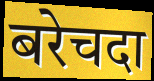
बरेचदा